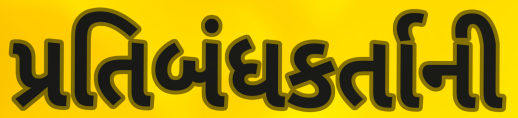
પ્રતિબંધકર્તાની